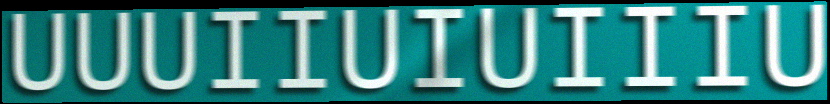
UUUIIUIUIIIU